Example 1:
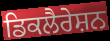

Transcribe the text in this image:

ਡਿਕਲੈਰੇਸ਼ਨ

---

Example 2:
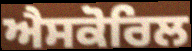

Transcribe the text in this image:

ਐਸਕੋਰਿਲ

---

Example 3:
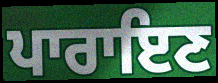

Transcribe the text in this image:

ਪਾਰਾਇਣ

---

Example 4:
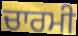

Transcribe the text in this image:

ਚਾਰਮੀ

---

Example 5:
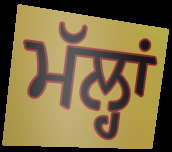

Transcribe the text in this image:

ਮੱਲ੍ਹਾਂ